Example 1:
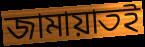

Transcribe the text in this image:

জামায়াতই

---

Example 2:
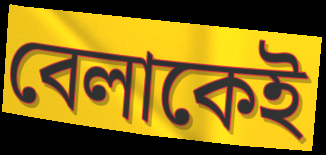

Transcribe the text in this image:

বেলাকেই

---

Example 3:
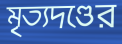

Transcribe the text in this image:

মৃত্যদণ্ডের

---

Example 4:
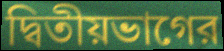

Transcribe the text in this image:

দ্বিতীয়ভাগের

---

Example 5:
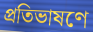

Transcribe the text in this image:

প্রতিভাষণে